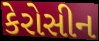
કેરોસીન